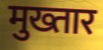
मुख्‍तार